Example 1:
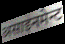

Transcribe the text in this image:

असाइनमेन्ट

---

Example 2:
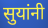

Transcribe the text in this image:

सुयांनी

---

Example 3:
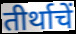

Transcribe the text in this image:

तीर्थाचें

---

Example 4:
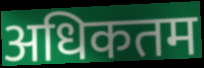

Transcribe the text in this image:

अधिकतम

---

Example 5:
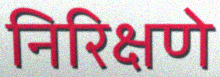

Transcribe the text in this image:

निरिक्षणे